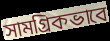
সামগ্রিকভাবে